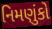
નિમણુંકો